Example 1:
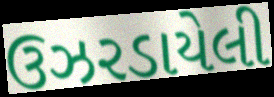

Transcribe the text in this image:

ઉઝરડાયેલી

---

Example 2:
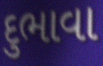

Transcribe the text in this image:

દુભાવા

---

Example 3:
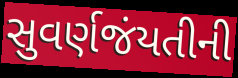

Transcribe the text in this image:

સુવર્ણજંયતીની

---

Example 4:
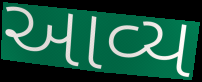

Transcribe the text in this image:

આવ્ય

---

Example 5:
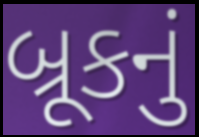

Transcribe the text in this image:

બ્રૂકનું